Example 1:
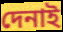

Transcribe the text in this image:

দেনাই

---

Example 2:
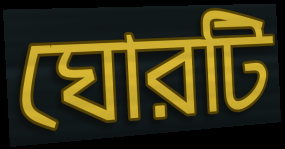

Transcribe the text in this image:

ঘোরটি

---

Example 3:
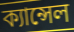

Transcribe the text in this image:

ক্যান্সেল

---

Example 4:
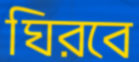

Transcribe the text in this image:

ঘিরবে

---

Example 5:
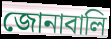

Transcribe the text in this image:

জোনাবালি